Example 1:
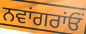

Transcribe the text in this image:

ਨਵਾਂਗਰਾਂਓਂ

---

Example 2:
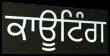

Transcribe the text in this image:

ਕਾਊਟਿੰਗ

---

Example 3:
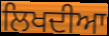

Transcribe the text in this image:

ਲਿਖਦੀਆ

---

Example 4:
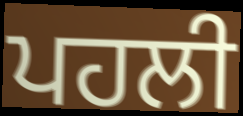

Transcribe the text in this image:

ਪਹਲੀ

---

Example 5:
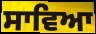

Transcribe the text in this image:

ਸਾਵਿਆ